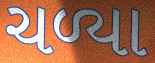
ચળ્યા